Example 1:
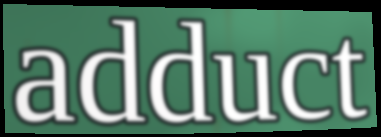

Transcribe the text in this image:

adduct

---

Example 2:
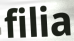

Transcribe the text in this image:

filia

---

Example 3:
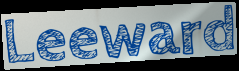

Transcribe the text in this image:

Leeward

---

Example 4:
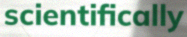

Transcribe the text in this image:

scientifically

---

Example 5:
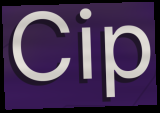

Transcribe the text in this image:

Cip